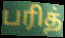
பரித்